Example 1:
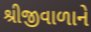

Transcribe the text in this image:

શ્રીજીવાળાને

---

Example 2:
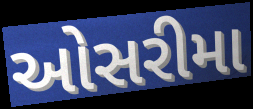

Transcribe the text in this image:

ઓસરીમા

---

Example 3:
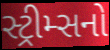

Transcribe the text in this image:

સ્ટ્રીમ્સનો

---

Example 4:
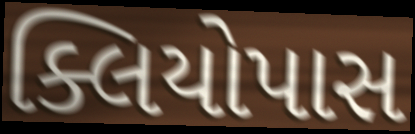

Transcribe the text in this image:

ક્લિયોપાસ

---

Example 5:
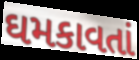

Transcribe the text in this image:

ઘમકાવતાં